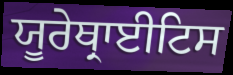
ਯੂਰੇਥ੍ਰਾਈਟਿਸ